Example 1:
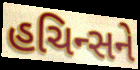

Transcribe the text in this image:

હચિન્સને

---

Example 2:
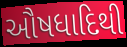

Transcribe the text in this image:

ઔષધાદિથી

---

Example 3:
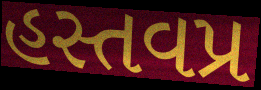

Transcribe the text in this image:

હસ્તવપ્ર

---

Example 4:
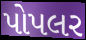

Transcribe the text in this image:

પોપલર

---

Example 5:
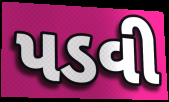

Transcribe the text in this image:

પડવી